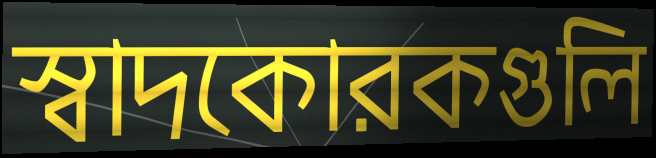
স্বাদকোরকগুলি